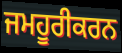
ਜਮਹੂਰੀਕਰਨ